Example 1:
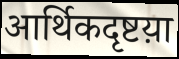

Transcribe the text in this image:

आर्थिकदृष्टय़ा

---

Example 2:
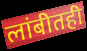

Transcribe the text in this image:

लांबीतही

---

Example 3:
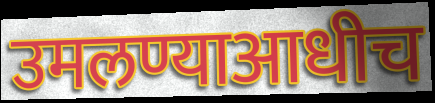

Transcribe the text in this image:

उमलण्याआधीच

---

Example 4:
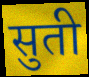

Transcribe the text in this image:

सुती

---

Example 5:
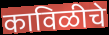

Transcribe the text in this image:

काविळीचे